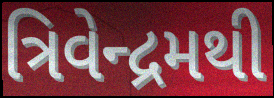
ત્રિવેન્દ્રમથી